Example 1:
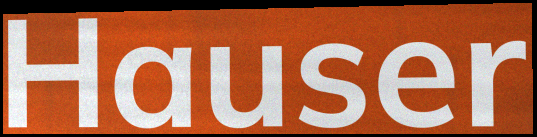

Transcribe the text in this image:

Hauser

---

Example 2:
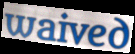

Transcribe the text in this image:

waived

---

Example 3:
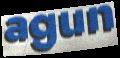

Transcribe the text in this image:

agun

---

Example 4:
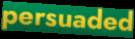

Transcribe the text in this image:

persuaded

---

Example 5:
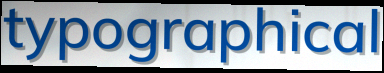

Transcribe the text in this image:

typographical